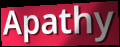
Apathy